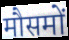
मौसमों